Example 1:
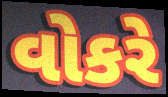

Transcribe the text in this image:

વોકરે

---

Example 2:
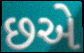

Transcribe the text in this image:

છએ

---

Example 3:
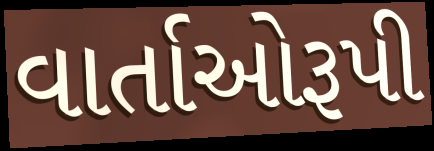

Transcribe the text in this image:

વાર્તાઓરૂપી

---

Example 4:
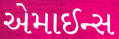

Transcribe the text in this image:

એમાઈન્સ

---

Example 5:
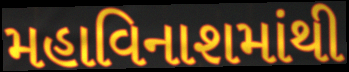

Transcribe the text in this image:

મહાવિનાશમાંથી